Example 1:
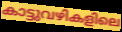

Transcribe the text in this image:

കാട്ടുവഴികളിലെ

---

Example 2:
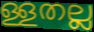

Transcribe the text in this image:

ള്ളതല്ല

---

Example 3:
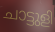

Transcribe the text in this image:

ചാട്ടുളി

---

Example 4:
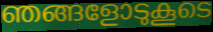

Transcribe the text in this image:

ഞങ്ങളോടുകൂടെ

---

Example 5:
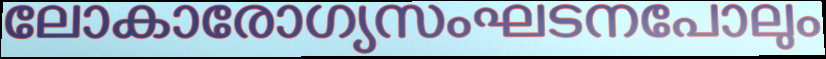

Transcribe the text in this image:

ലോകാരോഗ്യസംഘടനപോലും